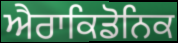
ਐਰਾਕਿਡੋਨਿਕ